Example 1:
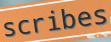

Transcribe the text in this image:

scribes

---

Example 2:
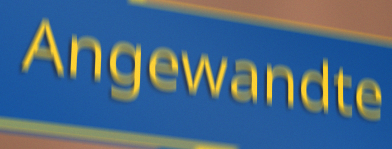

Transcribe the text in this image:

Angewandte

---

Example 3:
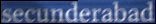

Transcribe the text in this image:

secunderabad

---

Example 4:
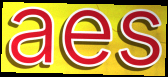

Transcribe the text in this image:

aes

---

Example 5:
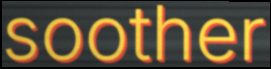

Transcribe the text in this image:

soother